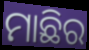
ମାଛିର